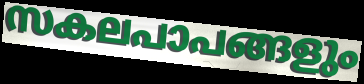
സകലപാപങ്ങളും